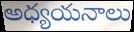
అధ్యయనాలు